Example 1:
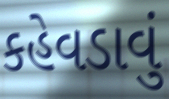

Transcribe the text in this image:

કહેવડાવું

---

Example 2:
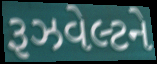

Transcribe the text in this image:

રૂઝવેલ્ટને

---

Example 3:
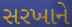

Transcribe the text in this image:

સરખાને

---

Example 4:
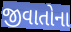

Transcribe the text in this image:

જીવાતોના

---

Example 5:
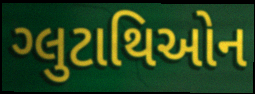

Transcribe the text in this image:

ગ્લુટાથિઓન